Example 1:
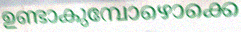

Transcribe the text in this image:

ഉണ്ടാകുമ്പോഴൊക്കെ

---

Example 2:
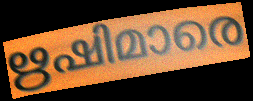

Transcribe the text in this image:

ഋഷിമാരെ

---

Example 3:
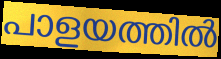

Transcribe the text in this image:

പാളയത്തിൽ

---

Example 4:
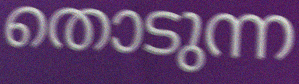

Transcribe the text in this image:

തൊടുന്ന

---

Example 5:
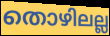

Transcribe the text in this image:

തൊഴിലല്ല